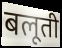
बलूती